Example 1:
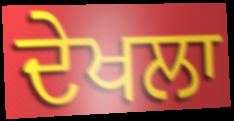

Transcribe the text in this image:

ਦੇਖਲਾ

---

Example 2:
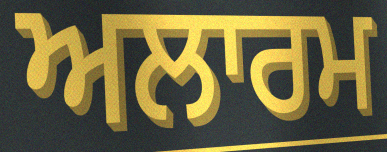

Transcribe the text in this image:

ਅਲਾਰਮ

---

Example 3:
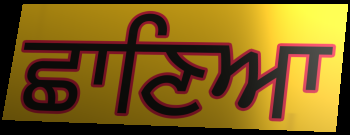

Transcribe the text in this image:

ਛਾਣਿਆ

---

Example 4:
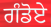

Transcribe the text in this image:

ਗੰਡੋਏ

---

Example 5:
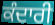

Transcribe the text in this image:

ਕੰਦਾਰੀ